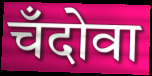
चँदोवा